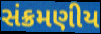
સંક્રમણીય